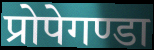
प्रोपेगण्डा